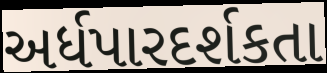
અર્ધપારદર્શકતા